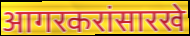
आगरकरांसारखे